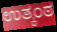
ಉತ್ಕಂಠ